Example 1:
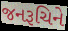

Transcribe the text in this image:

જનરૂચિને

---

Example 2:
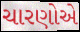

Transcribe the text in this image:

ચારણોએ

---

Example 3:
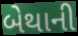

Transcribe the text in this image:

બેથાની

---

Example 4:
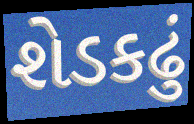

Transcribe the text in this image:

શેડકઢું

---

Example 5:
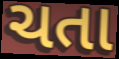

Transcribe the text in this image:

ચતા